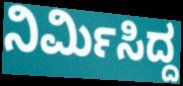
ನಿರ್ಮಿಸಿದ್ದ